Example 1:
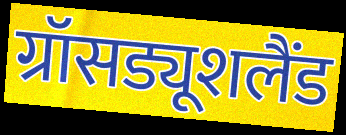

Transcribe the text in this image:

ग्रॉसड्यूशलैंड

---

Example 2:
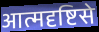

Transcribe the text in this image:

आत्मदृष्टिसे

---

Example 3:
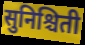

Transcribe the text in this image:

सुनिश्चिती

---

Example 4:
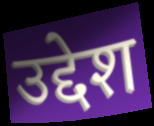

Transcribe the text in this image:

उद्देश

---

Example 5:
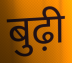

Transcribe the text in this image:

बुढ़ी